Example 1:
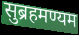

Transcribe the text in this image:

सुब्रहमण्यम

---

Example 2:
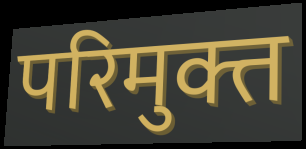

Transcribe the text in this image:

परिमुक्त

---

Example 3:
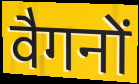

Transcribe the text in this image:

वैगनों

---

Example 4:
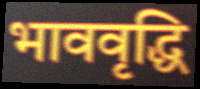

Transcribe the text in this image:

भाववृद्धि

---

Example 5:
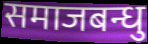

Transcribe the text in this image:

समाजबन्धु